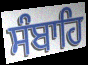
ਸੰਬਾਹਿ